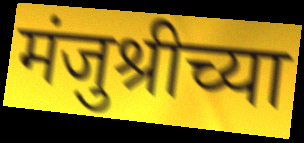
मंजुश्रीच्या